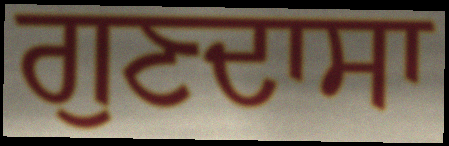
ਗੁਣਦਾਸਾ